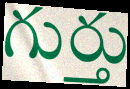
గుర్తు